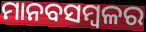
ମାନବସମ୍ବଳର